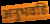
अनुभवहि